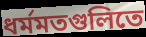
ধর্মমতগুলিতে